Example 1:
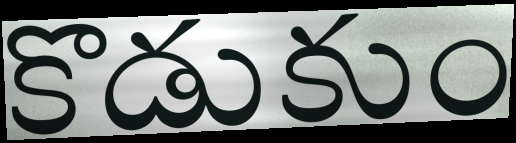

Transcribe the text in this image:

కొడుకుం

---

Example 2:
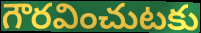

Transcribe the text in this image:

గౌరవించుటకు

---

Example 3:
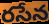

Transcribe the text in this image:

రసేన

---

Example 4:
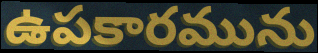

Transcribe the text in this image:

ఉపకారమును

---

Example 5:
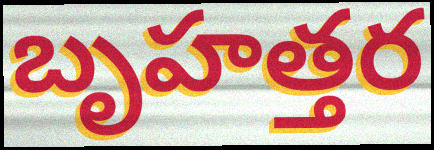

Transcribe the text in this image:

బృహత్తర